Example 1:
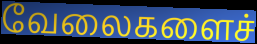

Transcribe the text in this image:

வேலைகளைச்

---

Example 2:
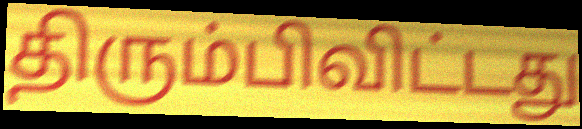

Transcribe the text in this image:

திரும்பிவிட்டது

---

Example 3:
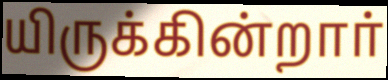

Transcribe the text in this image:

யிருக்கின்றார்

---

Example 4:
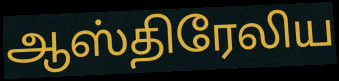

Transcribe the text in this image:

ஆஸ்திரேலிய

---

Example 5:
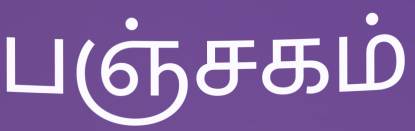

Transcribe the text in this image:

பஞ்சகம்